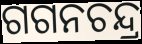
ଗଗନଚନ୍ଦ୍ର